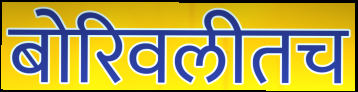
बोरिवलीतच